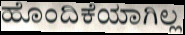
ಹೊಂದಿಕೆಯಾಗಿಲ್ಲ